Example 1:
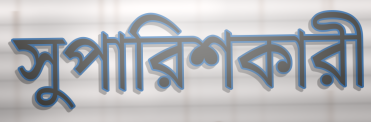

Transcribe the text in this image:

সুপারিশকারী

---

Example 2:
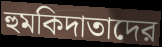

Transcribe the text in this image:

হুমকিদাতাদের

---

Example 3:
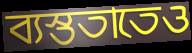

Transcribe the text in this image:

ব্যস্ততাতেও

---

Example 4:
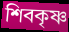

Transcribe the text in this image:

শিবকৃষ্ণ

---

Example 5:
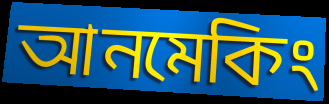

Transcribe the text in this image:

আনমেকিং